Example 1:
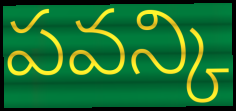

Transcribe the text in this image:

పవన్కి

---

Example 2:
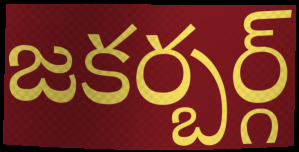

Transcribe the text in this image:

జకర్బర్గ్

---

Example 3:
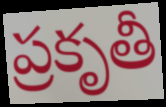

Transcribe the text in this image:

ప్రకృతీ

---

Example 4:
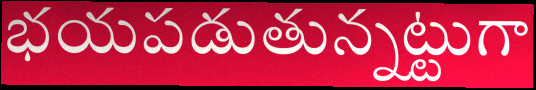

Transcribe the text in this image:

భయపడుతున్నట్టుగా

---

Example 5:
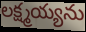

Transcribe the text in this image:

లక్ష్మయ్యను